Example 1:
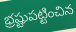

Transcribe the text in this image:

భ్రష్టుపట్టించిన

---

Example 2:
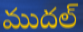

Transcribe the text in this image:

ముదల్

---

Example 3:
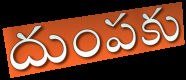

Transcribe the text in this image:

దుంపకు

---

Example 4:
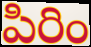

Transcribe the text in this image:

పిరిం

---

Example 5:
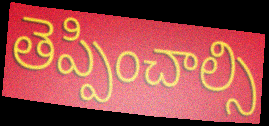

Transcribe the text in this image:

తెప్పించాల్సి